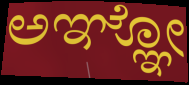
ಅಞ್ಞೋ